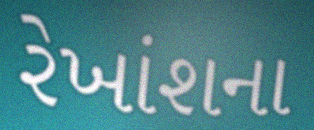
રેખાંશના